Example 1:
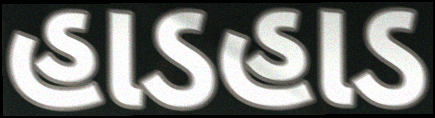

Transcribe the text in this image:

હાડહાડ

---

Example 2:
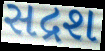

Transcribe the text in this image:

સદ્રશ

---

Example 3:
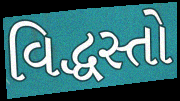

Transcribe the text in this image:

વિદ્ધસ્તો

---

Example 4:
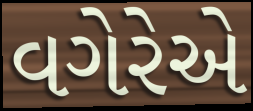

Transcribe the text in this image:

વગેરેએ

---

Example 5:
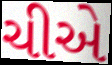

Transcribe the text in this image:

ચીએ